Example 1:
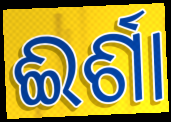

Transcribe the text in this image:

ଈର୍ଶା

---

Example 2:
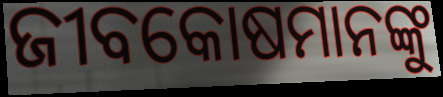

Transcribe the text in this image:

ଜୀବକୋଷମାନଙ୍କୁ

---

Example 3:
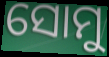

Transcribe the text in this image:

ସୋମୁ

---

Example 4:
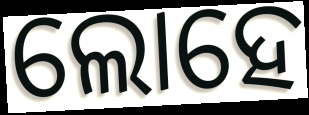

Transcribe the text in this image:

ଲୋହେ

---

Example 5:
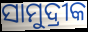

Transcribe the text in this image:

ସାମୁଦ୍ରୀକ